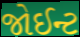
જોઈન્ટ